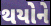
થયોને